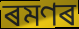
ৰমণৰ